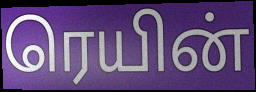
ரெயின்